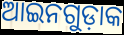
ଆଇନଗୁଡ଼ାକ